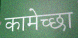
कामेच्छा